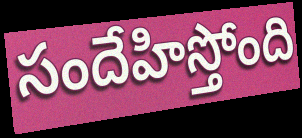
సందేహిస్తోంది